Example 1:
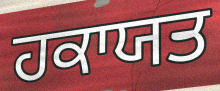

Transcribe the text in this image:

ਹਕਾਯਤ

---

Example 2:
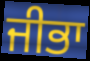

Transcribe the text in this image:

ਜੀਭਾ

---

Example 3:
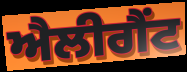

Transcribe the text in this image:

ਐਲੀਗੈਂਟ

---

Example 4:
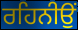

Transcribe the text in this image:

ਰਹਿਨੀਉਂ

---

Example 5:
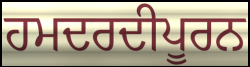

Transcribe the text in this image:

ਹਮਦਰਦੀਪੂਰਨ